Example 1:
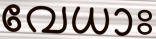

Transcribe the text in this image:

വേധാഃ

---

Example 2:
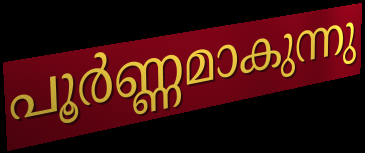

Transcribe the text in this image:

പൂർണ്ണമാകുന്നു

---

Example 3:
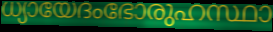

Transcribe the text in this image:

ധ്യായേദംഭോരുഹസ്ഥാ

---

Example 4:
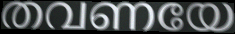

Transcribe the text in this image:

തവണയേ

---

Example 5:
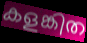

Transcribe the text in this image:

കളങ്കിത